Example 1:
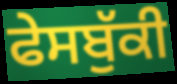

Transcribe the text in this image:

ਫੇਸਬੁੱਕੀ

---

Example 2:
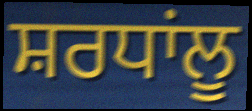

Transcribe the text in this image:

ਸ਼ਰਧਾਂਲੂ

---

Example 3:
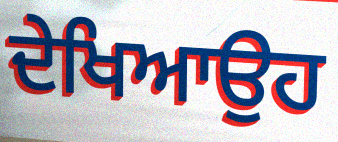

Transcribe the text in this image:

ਦੇਖਿਆਉਹ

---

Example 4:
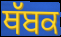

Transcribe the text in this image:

ਥੱਬਕ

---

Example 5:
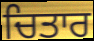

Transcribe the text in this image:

ਚਿਤਾਰ